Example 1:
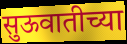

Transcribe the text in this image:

सुऊवातीच्या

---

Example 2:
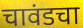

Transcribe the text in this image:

चावंडचा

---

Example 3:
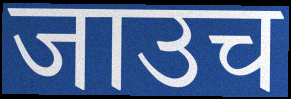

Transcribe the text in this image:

जाउच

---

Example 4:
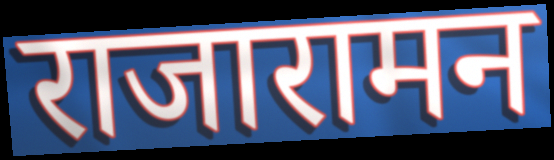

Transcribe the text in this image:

राजारामन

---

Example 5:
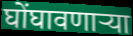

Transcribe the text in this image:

घोंघावणाऱ्या